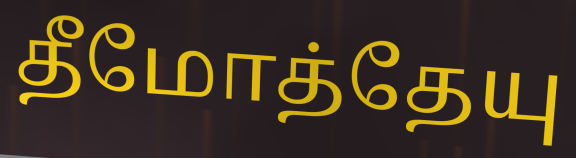
தீமோத்தேயு